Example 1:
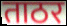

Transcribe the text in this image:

ताठर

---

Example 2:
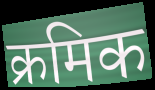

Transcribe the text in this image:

क्रमिक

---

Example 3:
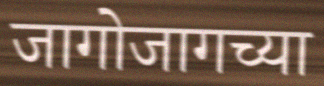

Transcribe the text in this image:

जागोजागच्या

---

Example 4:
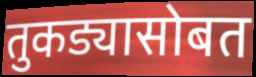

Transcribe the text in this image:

तुकड्यासोबत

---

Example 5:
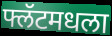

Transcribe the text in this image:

फ्लॅटमधला